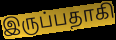
இருப்பதாகி